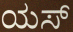
ಯಸ್